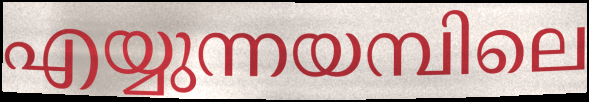
എയ്യുന്നയമ്പിലെ